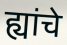
ह्यांचे